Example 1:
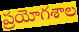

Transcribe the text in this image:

ప్రయోగశాల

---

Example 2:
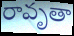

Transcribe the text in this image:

రావృతా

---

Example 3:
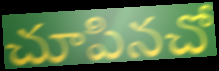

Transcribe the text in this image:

చూపినచో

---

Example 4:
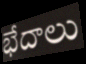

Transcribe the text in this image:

భేదాలు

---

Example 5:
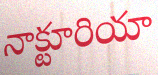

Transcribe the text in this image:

నాక్టూరియా